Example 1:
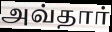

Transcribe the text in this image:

அவ்தார்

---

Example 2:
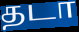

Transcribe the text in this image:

தடா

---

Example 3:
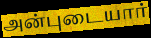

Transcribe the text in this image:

அன்புடையார்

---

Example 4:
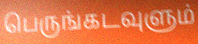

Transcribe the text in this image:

பெருங்கடவுளும்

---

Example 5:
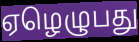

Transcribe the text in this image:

ஏழெழுபது